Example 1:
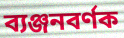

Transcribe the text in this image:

ব্যঞ্জনবৰ্ণক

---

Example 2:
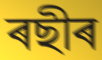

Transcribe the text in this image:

ৰছীৰ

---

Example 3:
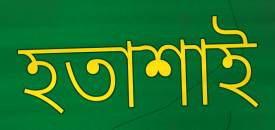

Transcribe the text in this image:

হতাশাই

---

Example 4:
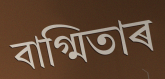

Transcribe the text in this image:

বাগ্মিতাৰ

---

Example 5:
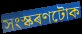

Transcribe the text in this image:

সংস্কৰণটোক